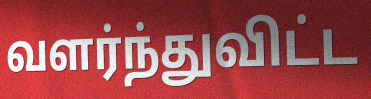
வளர்ந்துவிட்ட